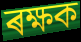
ৰক্ষক